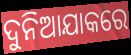
ଦୁନିଆଯାକରେ